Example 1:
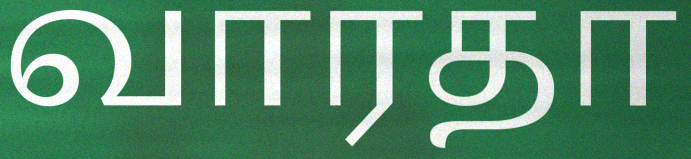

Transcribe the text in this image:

வாரதா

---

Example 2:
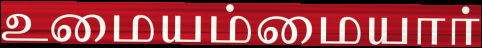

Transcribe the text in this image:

உமையம்மையார்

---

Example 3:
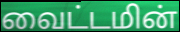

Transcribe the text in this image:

வைட்டமின்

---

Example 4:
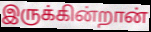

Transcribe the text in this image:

இருக்கின்றான்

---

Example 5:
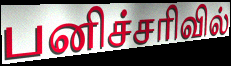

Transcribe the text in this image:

பனிச்சரிவில்